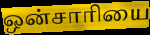
ஒன்சாரியை